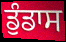
ਡੁੰਡਾਸ